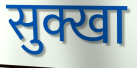
सुक्खा